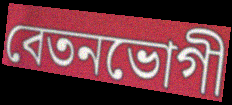
বেতনভোগী